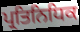
ਪ੍ਰਤਿਨਿਧਿਕ